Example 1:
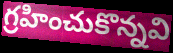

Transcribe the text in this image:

గ్రహించుకొన్నవి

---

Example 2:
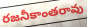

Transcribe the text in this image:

రజనీకాంతరావు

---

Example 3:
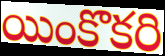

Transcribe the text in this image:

యింకొకరి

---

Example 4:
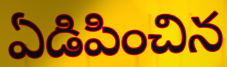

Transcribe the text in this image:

ఏడిపించిన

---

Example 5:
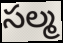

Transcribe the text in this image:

సల్మ